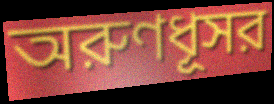
অরুণধূসর